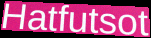
Hatfutsot